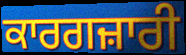
ਕਾਰਗਜ਼ਾਰੀ